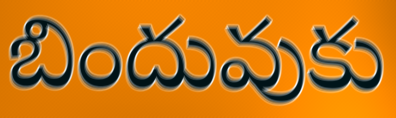
బిందువుకు